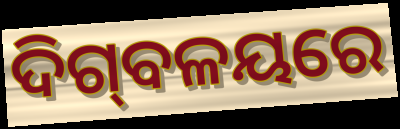
ଦିଗ୍‌ବଳୟରେ